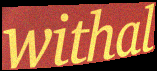
withal